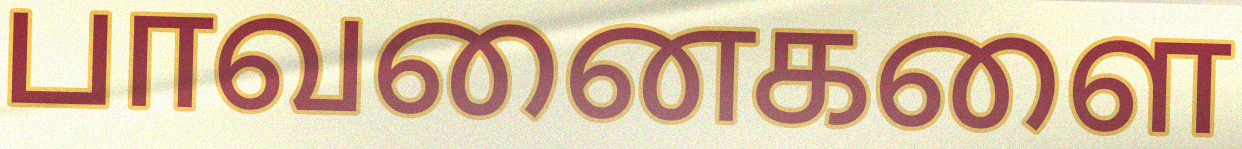
பாவனைகளை